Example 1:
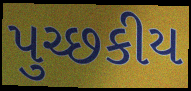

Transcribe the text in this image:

પુચ્છકીય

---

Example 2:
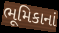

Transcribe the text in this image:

ભૂમિકાનાં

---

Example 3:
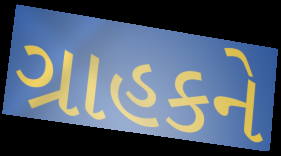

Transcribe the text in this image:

ગ્રાહકને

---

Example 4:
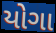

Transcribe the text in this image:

યોગા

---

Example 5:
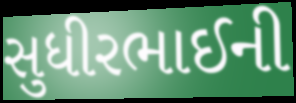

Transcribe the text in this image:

સુધીરભાઈની